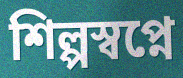
শিল্পস্বপ্নে